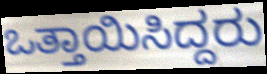
ಒತ್ತಾಯಿಸಿದ್ದರು